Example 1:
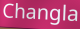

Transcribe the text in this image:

Changla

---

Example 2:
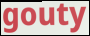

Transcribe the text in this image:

gouty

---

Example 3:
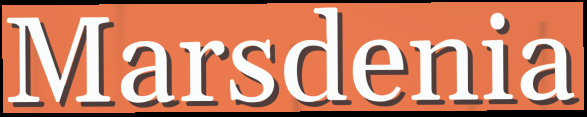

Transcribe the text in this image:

Marsdenia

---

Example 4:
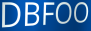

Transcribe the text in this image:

DBFOO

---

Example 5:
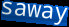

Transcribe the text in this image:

saway